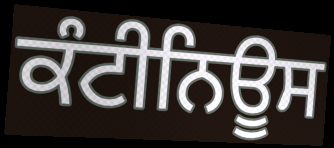
ਕੰਟੀਨਿਊਸ